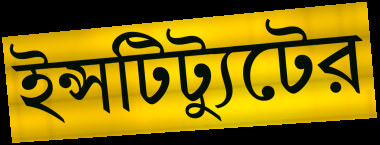
ইন্সটিট্যুটের